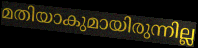
മതിയാകുമായിരുന്നില്ല